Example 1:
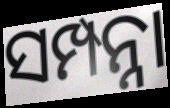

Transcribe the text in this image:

ସମ୍ପନ୍ନା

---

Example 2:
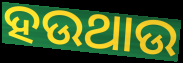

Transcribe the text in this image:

ହଉଥାଉ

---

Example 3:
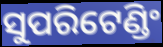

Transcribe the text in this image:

ସୁପରିଟେଣ୍ଡିଂ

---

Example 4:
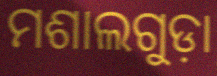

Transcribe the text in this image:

ମଶାଲଗୁଡ଼ା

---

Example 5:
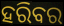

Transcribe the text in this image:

ହରିବର